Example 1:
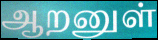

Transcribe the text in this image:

ஆறனுள்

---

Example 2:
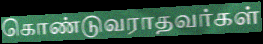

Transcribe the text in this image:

கொண்டுவராதவர்கள்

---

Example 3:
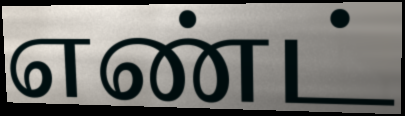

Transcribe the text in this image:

எண்ட்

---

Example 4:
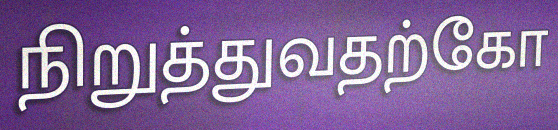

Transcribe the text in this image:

நிறுத்துவதற்கோ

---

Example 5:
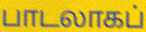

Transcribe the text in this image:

பாடலாகப்